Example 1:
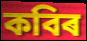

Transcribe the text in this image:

কবিৰ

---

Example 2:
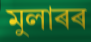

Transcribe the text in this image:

মুলাৰৰ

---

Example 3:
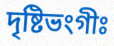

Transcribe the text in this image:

দৃষ্টিভংগীঃ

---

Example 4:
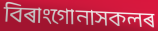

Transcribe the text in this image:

বিৰাংগোনাসকলৰ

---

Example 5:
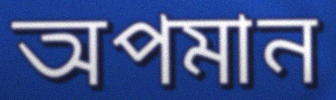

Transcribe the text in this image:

অপমান